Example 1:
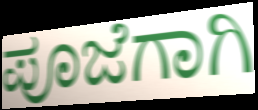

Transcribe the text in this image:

ಪೂಜೆಗಾಗಿ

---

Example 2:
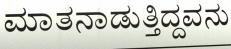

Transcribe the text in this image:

ಮಾತನಾಡುತ್ತಿದ್ದವನು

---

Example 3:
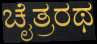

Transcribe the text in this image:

ಚೈತ್ರರಥ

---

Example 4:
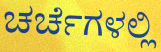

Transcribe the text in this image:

ಚರ್ಚೆಗಳಲ್ಲಿ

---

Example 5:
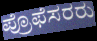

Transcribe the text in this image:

ಪ್ರೊಫೆಸರರು